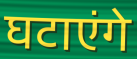
घटाएंगे